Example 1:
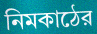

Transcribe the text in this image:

নিমকাঠের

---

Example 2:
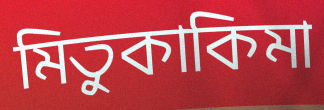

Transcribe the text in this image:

মিতুকাকিমা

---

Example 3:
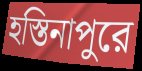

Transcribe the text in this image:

হস্তিনাপুরে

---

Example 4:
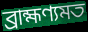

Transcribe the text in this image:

ব্রাহ্মণ্যমত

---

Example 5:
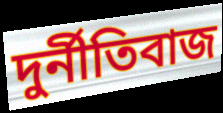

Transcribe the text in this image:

দুর্নীতিবাজ